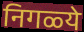
निगळ्ये